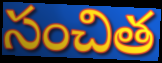
సంచిత